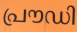
പ്രൗഡി